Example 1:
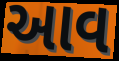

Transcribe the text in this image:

આવ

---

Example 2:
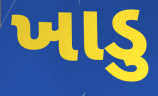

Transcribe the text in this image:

ખાડુ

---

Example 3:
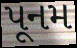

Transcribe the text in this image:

પૂનમ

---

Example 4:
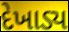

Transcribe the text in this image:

દેખાડ્ય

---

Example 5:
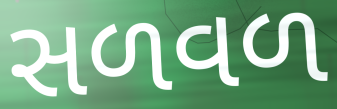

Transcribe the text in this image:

સળવળ